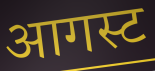
आगस्ट